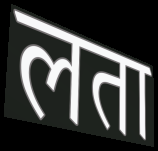
लता